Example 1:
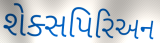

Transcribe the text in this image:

શેક્સપિરિઅન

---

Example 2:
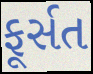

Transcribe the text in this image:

ફૂર્સત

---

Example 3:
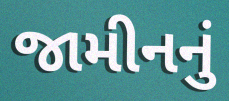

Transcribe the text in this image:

જામીનનું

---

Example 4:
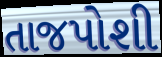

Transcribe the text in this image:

તાજપોશી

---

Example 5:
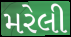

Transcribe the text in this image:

મરેલી